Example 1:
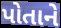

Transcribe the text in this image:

પોતાને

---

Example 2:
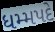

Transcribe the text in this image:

ધમ્મપદે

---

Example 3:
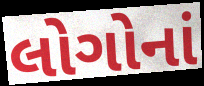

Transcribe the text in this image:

લોગોનાં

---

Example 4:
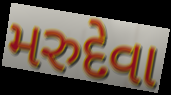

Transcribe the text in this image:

મરુદેવા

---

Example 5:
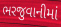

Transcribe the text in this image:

ભરજુવાનીમાં